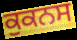
ਕੁਕਨਸ